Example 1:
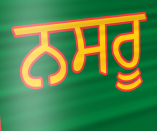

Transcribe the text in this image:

ਨਸਰੂ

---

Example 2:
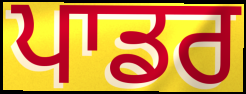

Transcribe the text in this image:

ਪਾਡਰ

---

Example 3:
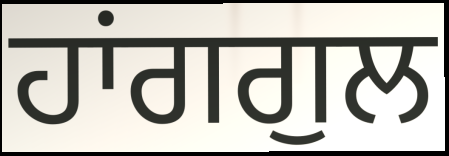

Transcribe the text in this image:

ਹਾਂਗਗੁਲ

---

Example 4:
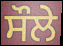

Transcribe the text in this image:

ਸੌਲੇ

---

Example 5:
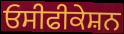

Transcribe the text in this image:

ਓਸੀਫੀਕੇਸ਼ਨ